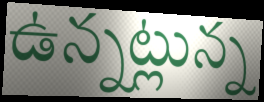
ఉన్నట్లున్న